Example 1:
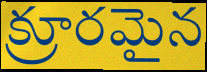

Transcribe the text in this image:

క్రూరమైన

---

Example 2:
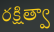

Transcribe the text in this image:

రక్షిత్వా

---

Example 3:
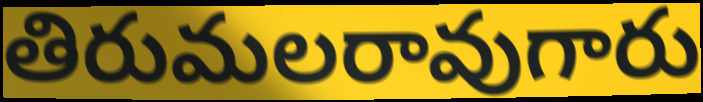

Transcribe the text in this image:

తిరుమలరావుగారు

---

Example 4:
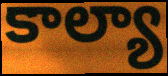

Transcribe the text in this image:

కాల్యా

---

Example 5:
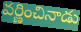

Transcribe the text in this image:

వర్ణించినాడు